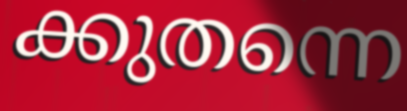
ക്കുതന്നെ